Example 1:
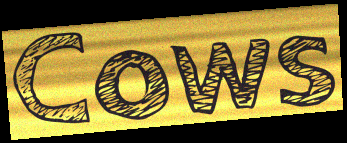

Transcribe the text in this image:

Cows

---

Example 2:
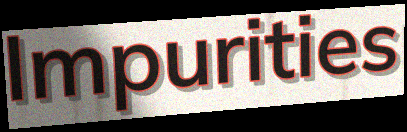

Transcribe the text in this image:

Impurities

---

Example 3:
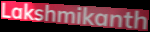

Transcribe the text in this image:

Lakshmikanth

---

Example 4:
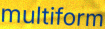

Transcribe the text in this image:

multiform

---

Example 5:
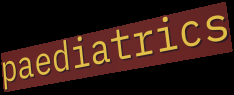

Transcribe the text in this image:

paediatrics